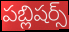
పబ్లిషర్స్